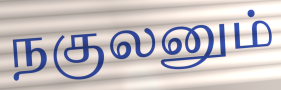
நகுலனும்